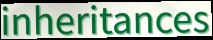
inheritances